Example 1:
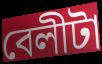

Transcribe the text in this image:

বেলীটা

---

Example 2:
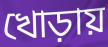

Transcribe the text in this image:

খোড়ায়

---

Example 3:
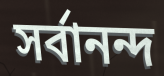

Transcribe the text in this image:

সর্বানন্দ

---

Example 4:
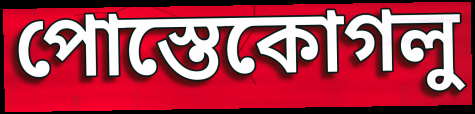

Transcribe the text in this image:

পোস্তেকোগলু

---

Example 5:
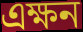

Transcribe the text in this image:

এক্ষন